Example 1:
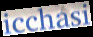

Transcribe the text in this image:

icchasi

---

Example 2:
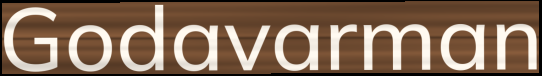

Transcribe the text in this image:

Godavarman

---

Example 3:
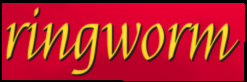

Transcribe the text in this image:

ringworm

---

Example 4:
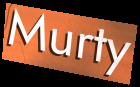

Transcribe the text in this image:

Murty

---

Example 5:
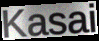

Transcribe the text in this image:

Kasai